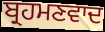
ਬ੍ਰਹਮਣਵਾਦ